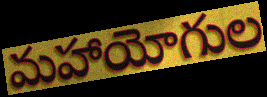
మహాయోగుల